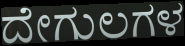
ದೇಗುಲಗಳ